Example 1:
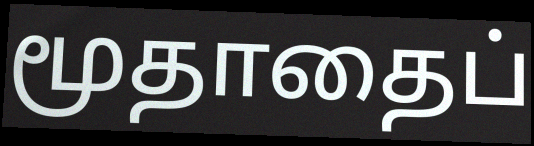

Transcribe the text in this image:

மூதாதைப்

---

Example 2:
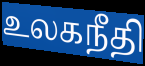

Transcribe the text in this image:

உலகநீதி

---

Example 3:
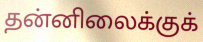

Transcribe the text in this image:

தன்னிலைக்குக்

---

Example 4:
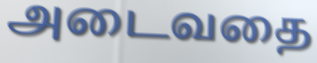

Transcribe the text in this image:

அடைவதை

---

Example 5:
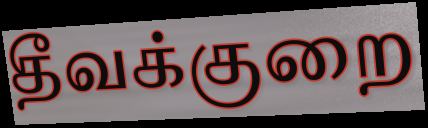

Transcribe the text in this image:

தீவக்குறை